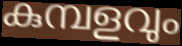
കുമ്പളവും